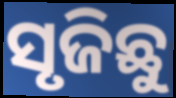
ସୃଜିଛୁ